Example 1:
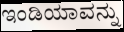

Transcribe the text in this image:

ಇಂಡಿಯಾವನ್ನು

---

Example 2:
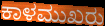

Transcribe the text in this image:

ಕಾಳಮುಖರು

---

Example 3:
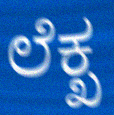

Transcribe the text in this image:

ಲೆಕ್ಖ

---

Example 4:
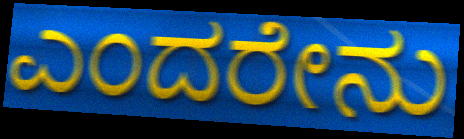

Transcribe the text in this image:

ಎಂದರೇನು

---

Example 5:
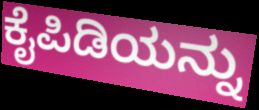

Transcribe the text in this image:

ಕೈಪಿಡಿಯನ್ನು